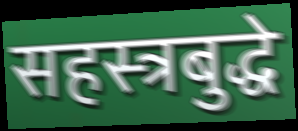
सहस्त्रबुद्धे